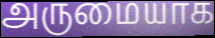
அருமையாக